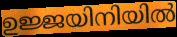
ഉജ്ജയിനിയിൽ